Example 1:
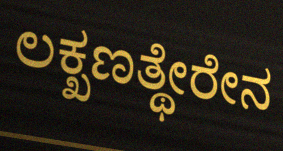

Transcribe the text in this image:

ಲಕ್ಖಣತ್ಥೇರೇನ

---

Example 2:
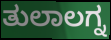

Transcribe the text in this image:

ತುಲಾಲಗ್ನ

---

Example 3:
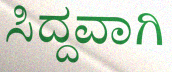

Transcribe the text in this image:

ಸಿದ್ದವಾಗಿ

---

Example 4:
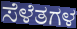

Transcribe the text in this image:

ಸೆಳೆತಗಳ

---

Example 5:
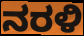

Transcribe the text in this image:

ನರಳಿ